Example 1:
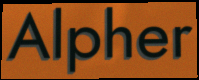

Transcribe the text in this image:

Alpher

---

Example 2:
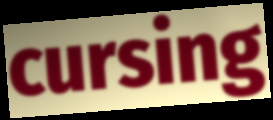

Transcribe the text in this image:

cursing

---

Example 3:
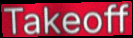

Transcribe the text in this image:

Takeoff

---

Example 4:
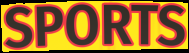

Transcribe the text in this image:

SPORTS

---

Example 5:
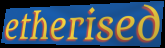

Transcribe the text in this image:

etherised